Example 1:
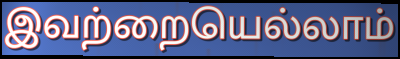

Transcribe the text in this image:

இவற்றையெல்லாம்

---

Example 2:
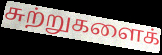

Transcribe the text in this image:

சுற்றுகளைக்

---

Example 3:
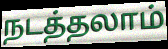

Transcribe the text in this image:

நடத்தலாம்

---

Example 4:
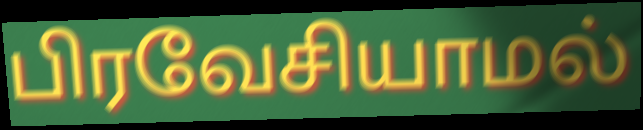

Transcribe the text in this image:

பிரவேசியாமல்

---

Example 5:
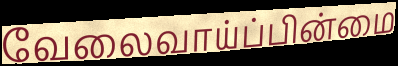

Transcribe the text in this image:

வேலைவாய்ப்பின்மை